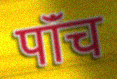
पॉंच